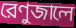
রেণুজালে